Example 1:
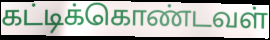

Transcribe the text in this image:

கட்டிக்கொண்டவள்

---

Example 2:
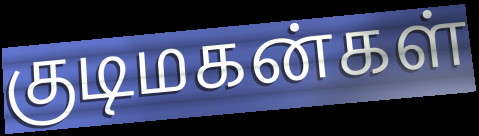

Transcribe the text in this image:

குடிமகன்கள்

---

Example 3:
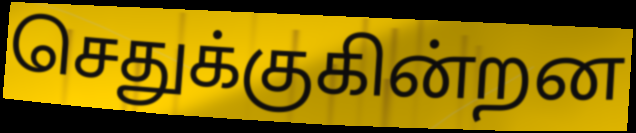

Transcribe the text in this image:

செதுக்குகின்றன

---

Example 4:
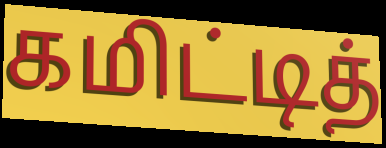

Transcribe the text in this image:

கமிட்டித்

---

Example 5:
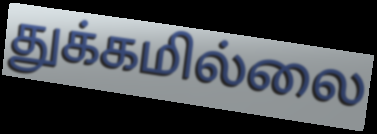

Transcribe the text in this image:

துக்கமில்லை